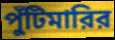
পুঁটিমারির